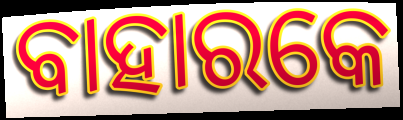
ବାହାରକେ